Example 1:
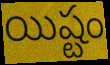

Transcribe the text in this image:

యిష్టం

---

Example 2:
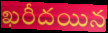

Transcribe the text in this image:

ఖరీదయిన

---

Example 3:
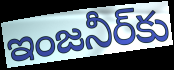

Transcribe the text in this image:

ఇంజనీర్‌కు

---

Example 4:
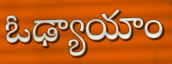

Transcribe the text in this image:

ఓఢ్యాయాం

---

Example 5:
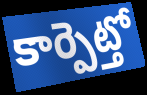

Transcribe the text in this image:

కార్పెట్తో